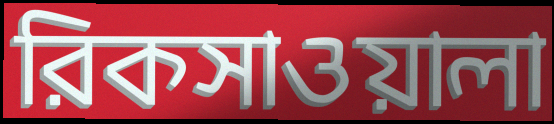
রিকসাওয়ালা